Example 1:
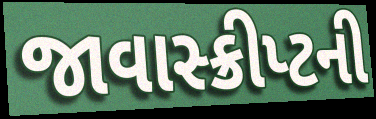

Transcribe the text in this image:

જાવાસ્ક્રીપ્ટની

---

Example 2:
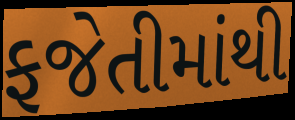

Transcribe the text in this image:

ફજેતીમાંથી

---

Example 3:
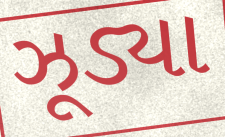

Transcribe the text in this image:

ઝૂડ્યા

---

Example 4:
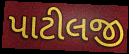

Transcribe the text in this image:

પાટીલજી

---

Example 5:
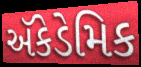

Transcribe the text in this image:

ઍકેડેમિક